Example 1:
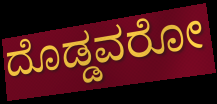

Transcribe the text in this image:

ದೊಡ್ಡವರೋ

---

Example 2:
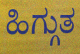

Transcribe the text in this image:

ಹಿಗ್ಗುತ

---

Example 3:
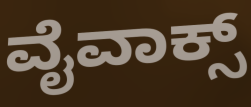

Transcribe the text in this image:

ವೈವಾಕ್ಸ್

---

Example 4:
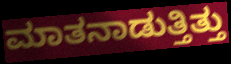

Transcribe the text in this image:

ಮಾತನಾಡುತ್ತಿತ್ತು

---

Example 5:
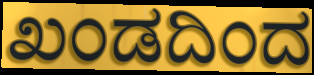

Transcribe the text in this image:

ಖಂಡದಿಂದ